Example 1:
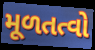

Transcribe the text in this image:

મૂળતત્વો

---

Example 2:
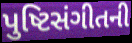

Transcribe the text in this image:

પુષ્ટિસંગીતની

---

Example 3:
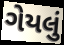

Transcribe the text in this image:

ગેયલું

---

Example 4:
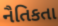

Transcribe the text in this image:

નૈતિકતા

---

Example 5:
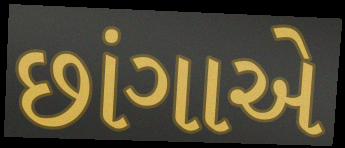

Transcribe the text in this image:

છાંગાએ